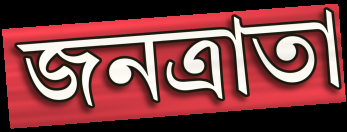
জনত্রাতা